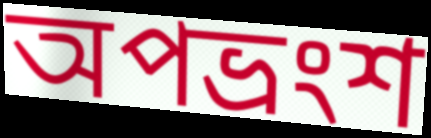
অপভ্ৰংশ